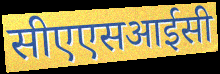
सीएएसआईसी